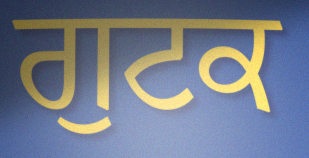
ਗੁਟਕ